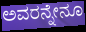
ಅವರನ್ನೇನೂ